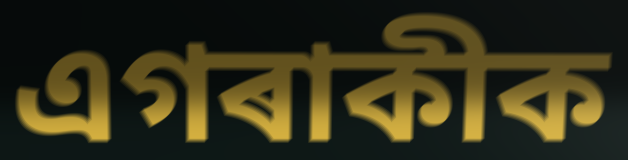
এগৰাকীক